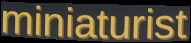
miniaturist